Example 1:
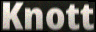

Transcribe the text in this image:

Knott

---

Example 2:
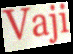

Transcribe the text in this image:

Vaji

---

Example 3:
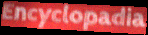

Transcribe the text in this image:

Encyclopadia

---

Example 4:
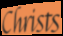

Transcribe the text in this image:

Christs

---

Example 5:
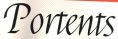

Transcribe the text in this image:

Portents